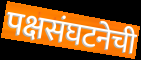
पक्षसंघटनेची